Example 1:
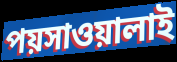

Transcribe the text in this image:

পয়সাওয়ালাই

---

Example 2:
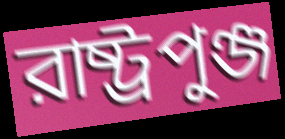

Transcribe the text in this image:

রাষ্ট্রপুঞ্জ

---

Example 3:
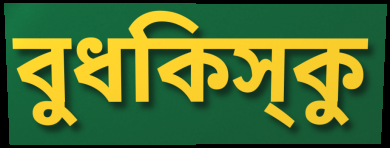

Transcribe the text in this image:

বুধকিস্‌কু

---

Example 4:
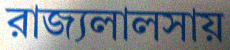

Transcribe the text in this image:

রাজ্যলালসায়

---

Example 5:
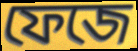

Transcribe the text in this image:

ফেজে